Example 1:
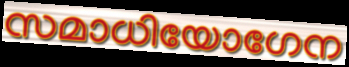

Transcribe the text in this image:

സമാധിയോഗേന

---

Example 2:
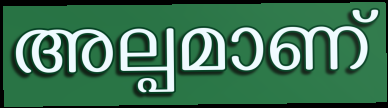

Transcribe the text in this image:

അല്പമാണ്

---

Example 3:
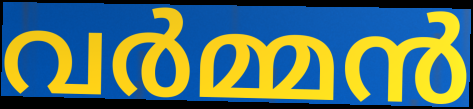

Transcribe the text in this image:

വർമ്മൻ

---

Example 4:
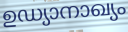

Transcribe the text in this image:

ഉഡ്യാനാഖ്യം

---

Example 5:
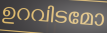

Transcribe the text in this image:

ഉറവിടമോ